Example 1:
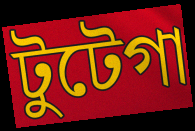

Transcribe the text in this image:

টুটেগা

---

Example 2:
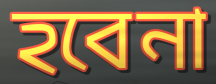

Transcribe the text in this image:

হবেনা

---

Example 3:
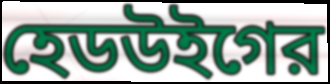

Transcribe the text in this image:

হেডউইগের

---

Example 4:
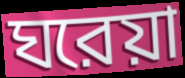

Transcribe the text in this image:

ঘরেয়া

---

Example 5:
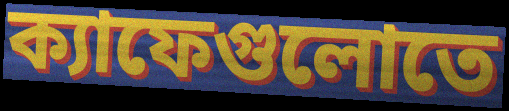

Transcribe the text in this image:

ক্যাফেগুলোতে